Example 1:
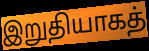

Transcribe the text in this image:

இறுதியாகத்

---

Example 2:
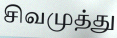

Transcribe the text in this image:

சிவமுத்து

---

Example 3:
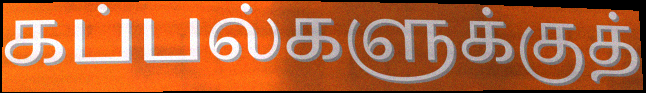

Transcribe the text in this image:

கப்பல்களுக்குத்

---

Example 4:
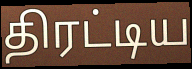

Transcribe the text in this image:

திரட்டிய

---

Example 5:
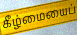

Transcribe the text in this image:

கீழ்மையைப்